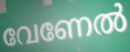
വേണേൽ